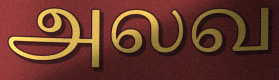
அலவ